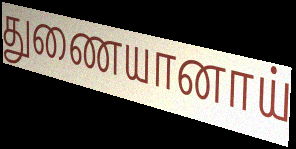
துணையானாய்